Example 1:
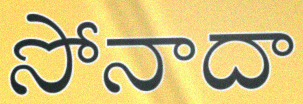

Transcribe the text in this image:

సోనాదా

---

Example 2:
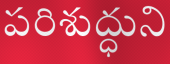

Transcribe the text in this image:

పరిశుద్ధుని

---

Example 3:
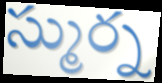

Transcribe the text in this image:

స్ముర్న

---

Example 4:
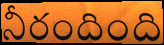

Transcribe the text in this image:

నీరందింది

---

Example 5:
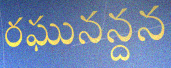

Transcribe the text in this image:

రఘునన్దన